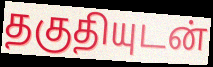
தகுதியுடன்